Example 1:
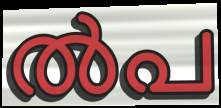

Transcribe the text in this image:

ൽപ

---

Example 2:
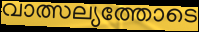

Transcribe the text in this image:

വാത്സല്യത്തോടെ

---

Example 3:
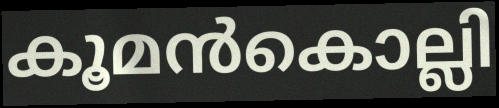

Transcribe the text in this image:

കൂമൻകൊല്ലി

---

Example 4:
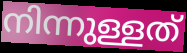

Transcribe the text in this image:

നിന്നുള്ളത്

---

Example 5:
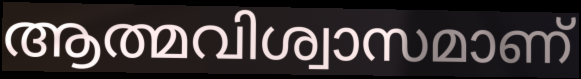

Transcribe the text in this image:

ആത്മവിശ്വാസമാണ്